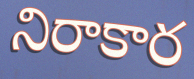
నిరాకార